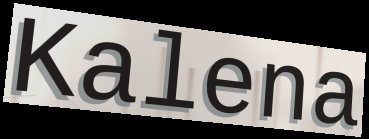
Kalena